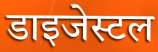
डाइजेस्टल